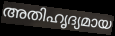
അതിഹൃദ്യമായ